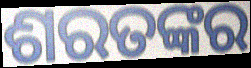
ଶରତଙ୍କର